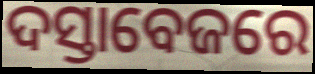
ଦସ୍ତାବେଜରେ